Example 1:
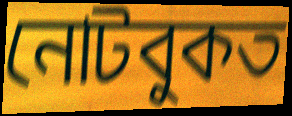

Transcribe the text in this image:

নোটবুকত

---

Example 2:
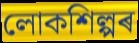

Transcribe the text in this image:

লোকশিল্পৰ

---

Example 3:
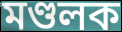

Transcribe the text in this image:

মণ্ডলক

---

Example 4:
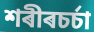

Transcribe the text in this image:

শৰীৰচৰ্চা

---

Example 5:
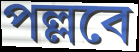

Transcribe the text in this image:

পল্লবে